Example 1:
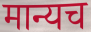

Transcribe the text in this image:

मान्यच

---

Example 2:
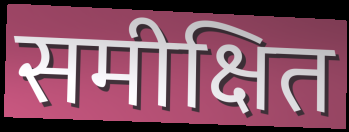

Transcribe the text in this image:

समीक्षित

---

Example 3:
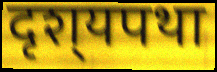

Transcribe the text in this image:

दृश्यपथा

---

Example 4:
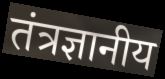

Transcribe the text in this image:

तंत्रज्ञानीय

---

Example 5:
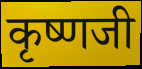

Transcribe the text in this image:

कृष्णजी